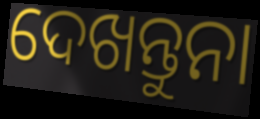
ଦେଖନ୍ତୁନା